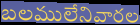
బలములేనివారల